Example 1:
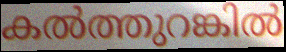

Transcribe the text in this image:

കൽത്തുറങ്കിൽ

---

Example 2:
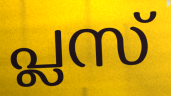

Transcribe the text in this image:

പ്ലസ്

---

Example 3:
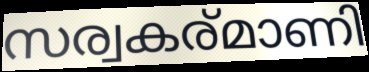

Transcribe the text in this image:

സര്വകര്മാണി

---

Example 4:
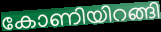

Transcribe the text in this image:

കോണിയിറങ്ങി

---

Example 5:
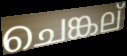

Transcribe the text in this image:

ചെങ്കല്